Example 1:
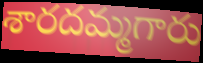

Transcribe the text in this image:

శారదమ్మగారు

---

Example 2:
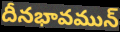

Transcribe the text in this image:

దీనభావమున్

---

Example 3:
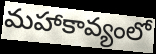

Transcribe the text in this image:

మహాకావ్యంలో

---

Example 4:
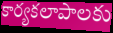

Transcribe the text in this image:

కార్యకలాపాలకు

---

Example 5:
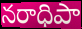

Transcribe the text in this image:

నరాధిపా